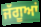
ਜੱਗੂਆਂ